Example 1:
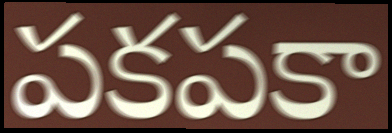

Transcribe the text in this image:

పకపకా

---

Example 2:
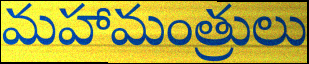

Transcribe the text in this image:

మహామంత్రులు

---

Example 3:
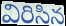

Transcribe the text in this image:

విరిసిన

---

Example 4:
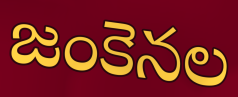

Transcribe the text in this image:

జంకెనల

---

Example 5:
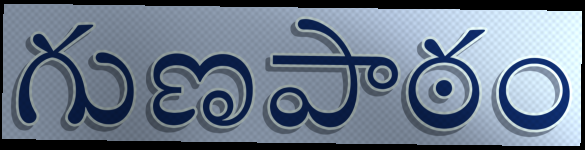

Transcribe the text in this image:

గుణపాఠం